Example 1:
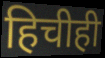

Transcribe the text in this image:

हिचीही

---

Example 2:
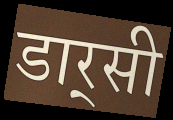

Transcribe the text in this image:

डार्सी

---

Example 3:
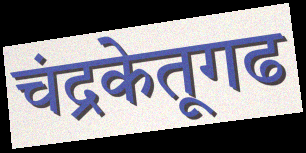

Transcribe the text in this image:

चंद्रकेतूगढ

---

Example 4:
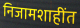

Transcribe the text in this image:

निजामशाहींत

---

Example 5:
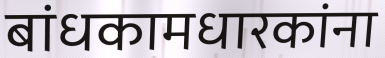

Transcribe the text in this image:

बांधकामधारकांना